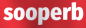
sooperb